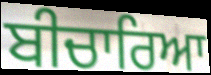
ਬੀਚਾਰਿਆ